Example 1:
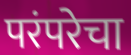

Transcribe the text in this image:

परंपरेचा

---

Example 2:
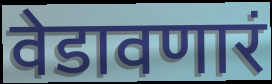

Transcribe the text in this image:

वेडावणारं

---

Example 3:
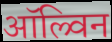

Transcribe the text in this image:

ऑल्विन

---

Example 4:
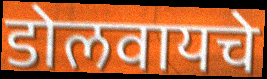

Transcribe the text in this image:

डोलवायचे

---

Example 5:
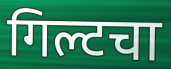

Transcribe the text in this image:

गिल्टचा